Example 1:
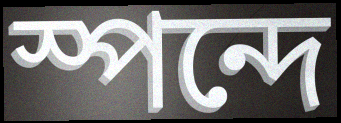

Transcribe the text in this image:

স্পন্দে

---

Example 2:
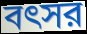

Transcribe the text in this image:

বৎসর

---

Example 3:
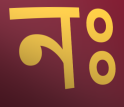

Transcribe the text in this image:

নঃ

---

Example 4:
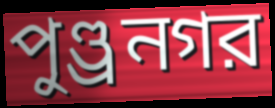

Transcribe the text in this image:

পুণ্ড্রনগর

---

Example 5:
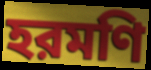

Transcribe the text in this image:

হরমণি